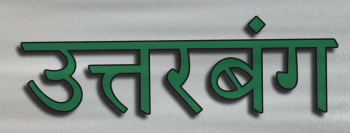
उत्तरबंग